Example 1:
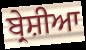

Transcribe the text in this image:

ਬ੍ਰੇਸ਼ੀਆ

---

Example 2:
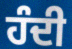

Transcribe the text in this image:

ਹੰਦੀ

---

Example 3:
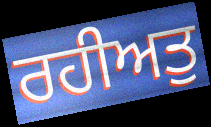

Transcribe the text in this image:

ਰਹੀਅਤੁ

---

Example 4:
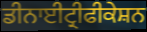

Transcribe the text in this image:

ਡੀਨਾਈਟ੍ਰੀਫੀਕੇਸ਼ਨ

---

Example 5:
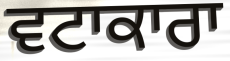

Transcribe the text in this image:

ਵਟਾਕਾਰਾ